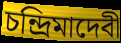
চন্দ্রিমাদেবী